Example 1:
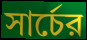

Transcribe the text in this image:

সার্চের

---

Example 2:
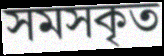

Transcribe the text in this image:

সমসকৃত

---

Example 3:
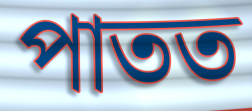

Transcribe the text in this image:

পাতত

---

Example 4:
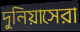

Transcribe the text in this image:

দুনিয়াসেরা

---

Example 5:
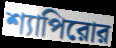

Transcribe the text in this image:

শ্যাপিরোর